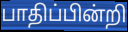
பாதிப்பின்றி